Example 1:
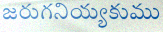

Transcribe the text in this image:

జరుగనియ్యకుము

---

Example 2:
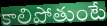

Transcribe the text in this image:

కాలిపోతుంటే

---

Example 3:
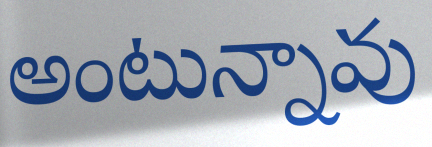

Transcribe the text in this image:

అంటున్నావు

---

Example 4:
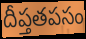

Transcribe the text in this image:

దీప్తతపసం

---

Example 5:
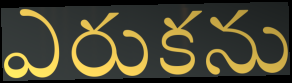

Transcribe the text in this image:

ఎరుకను